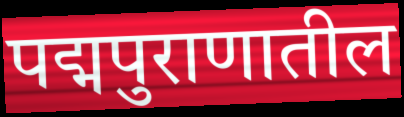
पद्मपुराणातील